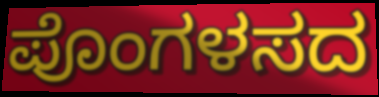
ಪೊಂಗಳಸದ